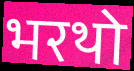
भरथो